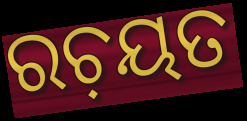
ରଚ଼ୟତ